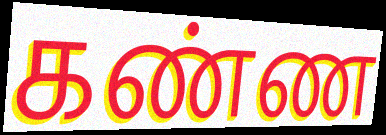
கண்ண